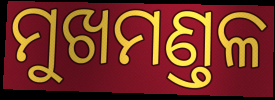
ମୁଖମଣ୍ତଳ